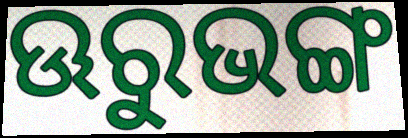
ଊରୁଭଙ୍ଗ